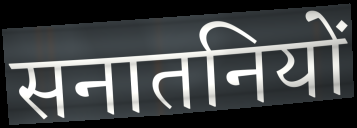
सनातनियों